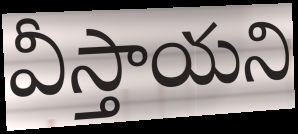
వీస్తాయని